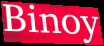
Binoy